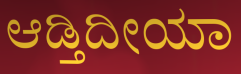
ಆಡ್ತಿದೀಯಾ